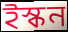
ইস্কন